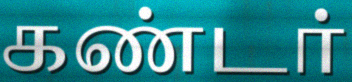
கண்டர்